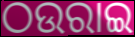
ଠଉରାଇ